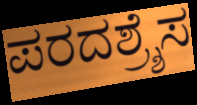
ಪರದಶ್ರ್ಶೆಸ